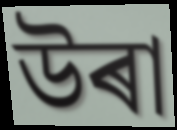
উৰা